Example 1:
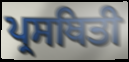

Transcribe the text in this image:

ਪ੍ਰਸਥਿਤੀ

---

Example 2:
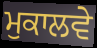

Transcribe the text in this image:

ਮੁਕਾਲਵੇ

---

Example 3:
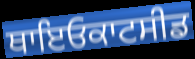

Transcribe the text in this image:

ਥਾਇਓਕਾਟਸੀਡ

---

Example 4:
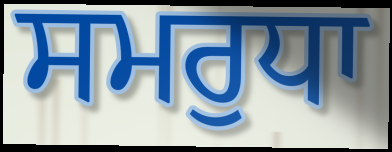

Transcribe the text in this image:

ਸਮਰੁਧਾ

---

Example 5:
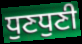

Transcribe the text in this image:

ਧੁਣਧੁਣੀ